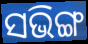
ସଭିଙ୍ଗ